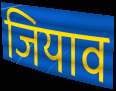
जियाव